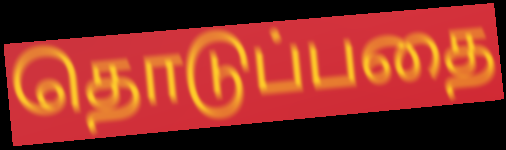
தொடுப்பதை